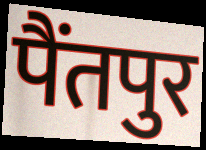
पैंतपुर